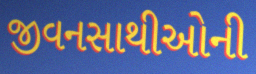
જીવનસાથીઓની